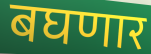
बघणार